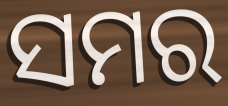
ସମର